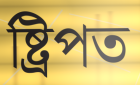
ষ্ট্ৰিপত